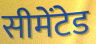
सीमेंटेड